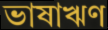
ভাষাঋণ